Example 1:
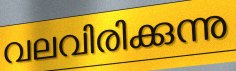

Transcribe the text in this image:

വലവിരിക്കുന്നു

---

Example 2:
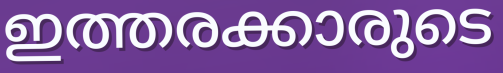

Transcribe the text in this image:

ഇത്തരക്കാരുടെ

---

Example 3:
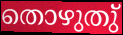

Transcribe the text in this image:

തൊഴുതു്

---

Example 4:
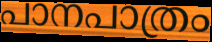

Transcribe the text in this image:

പാനപാത്രം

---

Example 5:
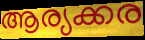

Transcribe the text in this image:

ആര്യക്കര